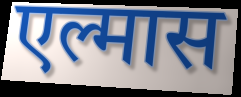
एल्मास